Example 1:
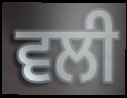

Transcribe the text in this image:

ਵਲੀ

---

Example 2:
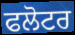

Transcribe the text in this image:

ਫਲੋਟਰ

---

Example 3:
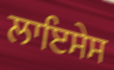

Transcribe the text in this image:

ਲਾਇਸੇਸ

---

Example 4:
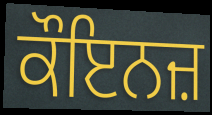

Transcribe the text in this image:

ਕੌਇਨਜ਼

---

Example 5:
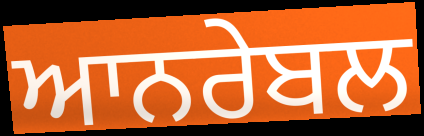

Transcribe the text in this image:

ਆਨਰੇਬਲ